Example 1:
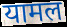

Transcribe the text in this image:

यामल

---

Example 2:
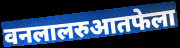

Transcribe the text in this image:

वनलालरुआतफेला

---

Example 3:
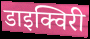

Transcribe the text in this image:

डाइक्विरी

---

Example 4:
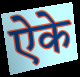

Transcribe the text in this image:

ऐके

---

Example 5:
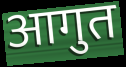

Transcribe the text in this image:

आगुत